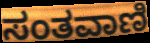
ಸಂತವಾಣಿ